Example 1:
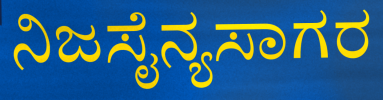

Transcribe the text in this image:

ನಿಜಸೈನ್ಯಸಾಗರ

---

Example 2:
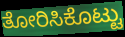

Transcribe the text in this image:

ತೋರಿಸಿಕೊಟ್ಟು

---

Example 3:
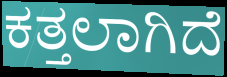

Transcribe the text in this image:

ಕತ್ತಲಾಗಿದೆ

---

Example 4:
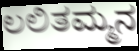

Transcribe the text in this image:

ಲಲಿತಮ್ಮನ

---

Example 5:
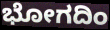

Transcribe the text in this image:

ಭೋಗದಿಂ